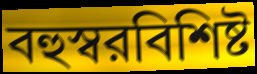
বহুস্বরবিশিষ্ট